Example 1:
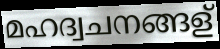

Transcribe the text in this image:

മഹദ്വചനങ്ങള്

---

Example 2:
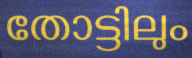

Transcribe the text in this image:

തോട്ടിലും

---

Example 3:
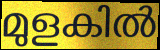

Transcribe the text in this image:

മുളകിൽ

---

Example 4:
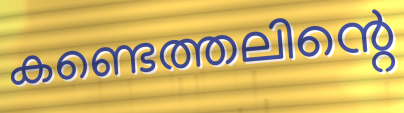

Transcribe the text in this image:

കണ്ടെത്തലിന്റെ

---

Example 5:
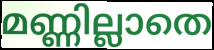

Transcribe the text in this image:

മണ്ണില്ലാതെ